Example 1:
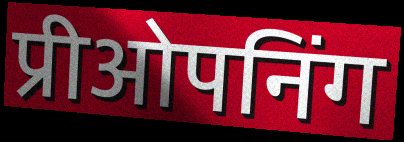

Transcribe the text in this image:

प्रीओपनिंग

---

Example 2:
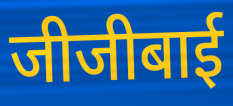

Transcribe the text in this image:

जीजीबाई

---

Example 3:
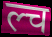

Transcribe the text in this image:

ल्च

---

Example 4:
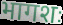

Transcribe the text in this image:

भागशः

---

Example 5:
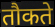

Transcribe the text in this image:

तौकते